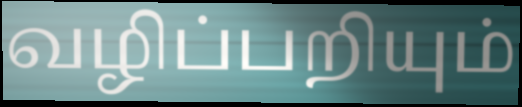
வழிப்பறியும்